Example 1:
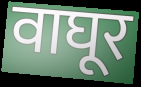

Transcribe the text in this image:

वाघूर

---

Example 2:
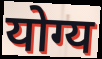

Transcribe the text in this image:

योग्य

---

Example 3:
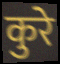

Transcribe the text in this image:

कुरे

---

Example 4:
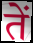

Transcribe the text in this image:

तें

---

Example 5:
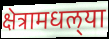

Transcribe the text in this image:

क्षेत्रामधल्या